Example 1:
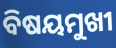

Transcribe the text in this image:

ବିଷୟମୁଖୀ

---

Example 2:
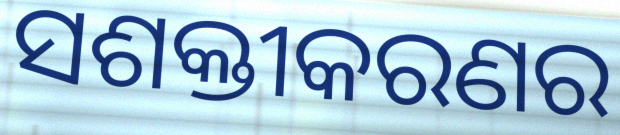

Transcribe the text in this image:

ସଶକ୍ତୀକରଣର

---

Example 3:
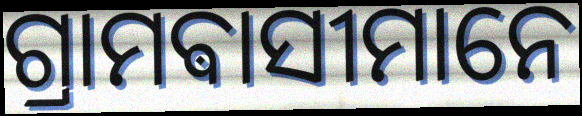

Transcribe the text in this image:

ଗ୍ରାମଵାସୀମାନେ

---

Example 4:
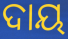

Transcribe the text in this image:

ଦାୟ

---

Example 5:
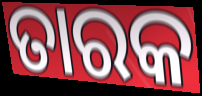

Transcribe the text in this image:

ତାରକ